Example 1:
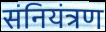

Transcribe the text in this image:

संनियंत्रण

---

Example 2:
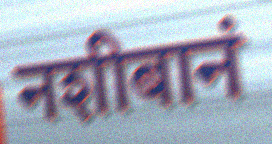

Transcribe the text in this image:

नशीबानं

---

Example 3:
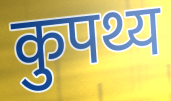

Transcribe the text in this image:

कुपथ्य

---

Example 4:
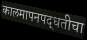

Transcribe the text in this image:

कालमापनपद्धतीचा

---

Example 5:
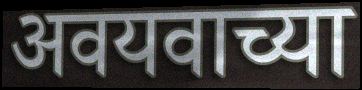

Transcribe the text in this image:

अवयवाच्या